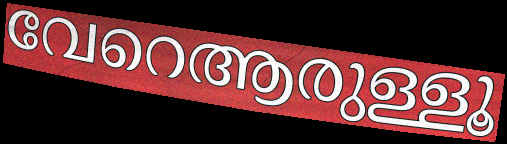
വേറെആരുള്ളൂ